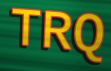
TRQ